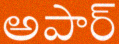
అపార్